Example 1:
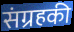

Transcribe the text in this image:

संग्रहकी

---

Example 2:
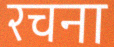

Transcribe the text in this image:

रचना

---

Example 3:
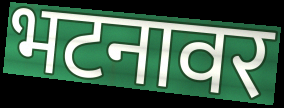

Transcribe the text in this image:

भटनावर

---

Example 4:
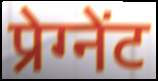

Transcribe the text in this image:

प्रेग्नेंट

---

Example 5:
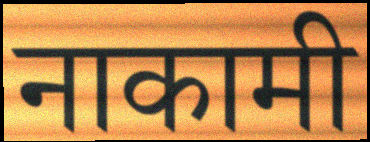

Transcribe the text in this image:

नाकामी